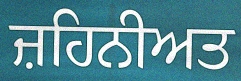
ਜ਼ਹਿਨੀਅਤ